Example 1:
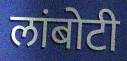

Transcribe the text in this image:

लांबोटी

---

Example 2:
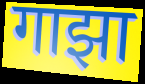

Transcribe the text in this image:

गाझा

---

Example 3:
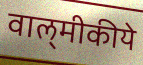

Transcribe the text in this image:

वाल्मीकीये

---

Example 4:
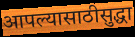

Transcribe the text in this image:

आपल्यासाठीसुद्धा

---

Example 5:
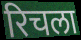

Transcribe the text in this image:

रिचला